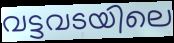
വട്ടവടയിലെ